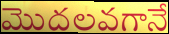
మొదలవగానే